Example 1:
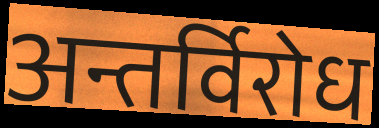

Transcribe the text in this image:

अन्तर्विरोध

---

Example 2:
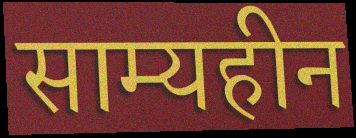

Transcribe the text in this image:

साम्यहीन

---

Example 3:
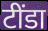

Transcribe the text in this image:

टींडा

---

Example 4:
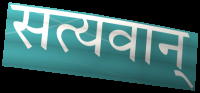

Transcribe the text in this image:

सत्यवान्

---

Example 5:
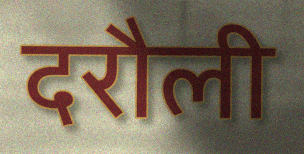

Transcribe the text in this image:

दरौली